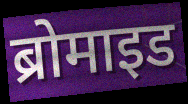
ब्रोमाइड